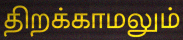
திறக்காமலும்